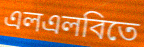
এলএলবিতে